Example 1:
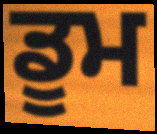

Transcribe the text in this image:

ਡੂਮ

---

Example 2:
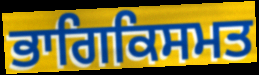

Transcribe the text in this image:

ਭਾਗਿਕਿਸਮਤ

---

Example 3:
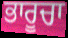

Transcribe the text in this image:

ਭਾਰੂਚਾ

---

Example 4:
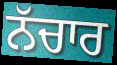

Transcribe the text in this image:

ਨੱਚਾਰ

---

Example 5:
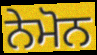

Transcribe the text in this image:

ਨੇਮੋਨ